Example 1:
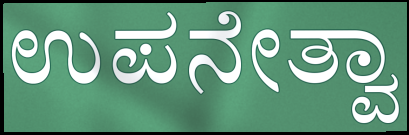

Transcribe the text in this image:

ಉಪನೇತ್ವಾ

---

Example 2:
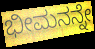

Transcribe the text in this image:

ಭೀಮನನ್ನೇ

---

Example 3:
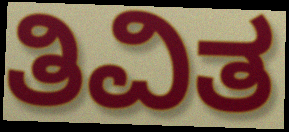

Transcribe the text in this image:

ತಿವಿತ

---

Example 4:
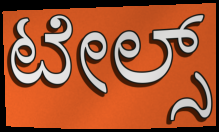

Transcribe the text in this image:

ಟೇಲ್ಸ್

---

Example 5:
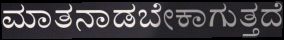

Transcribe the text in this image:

ಮಾತನಾಡಬೇಕಾಗುತ್ತದೆ